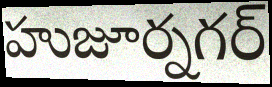
హుజూర్నగర్